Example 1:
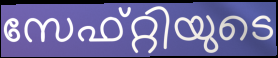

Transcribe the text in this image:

സേഫ്റ്റിയുടെ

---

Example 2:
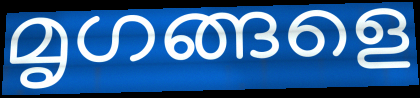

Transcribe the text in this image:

മൃഗങ്ങളെ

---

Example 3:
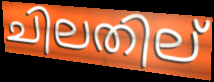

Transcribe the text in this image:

ചിലതില്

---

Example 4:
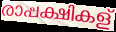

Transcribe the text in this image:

രാപ്പക്ഷികള്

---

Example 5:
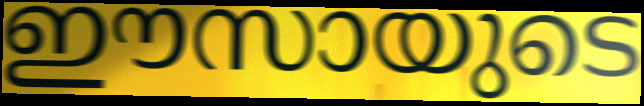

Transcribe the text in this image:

ഈസായുടെ